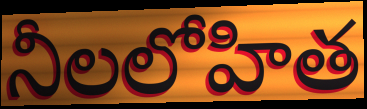
నీలలోహిత